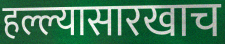
हल्ल्यासारखाच